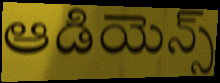
ఆడియెన్స్